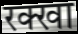
रक्‍खा